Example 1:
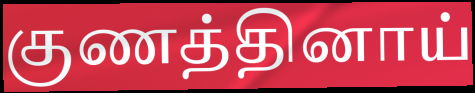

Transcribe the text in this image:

குணத்தினாய்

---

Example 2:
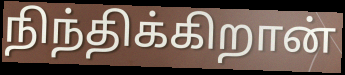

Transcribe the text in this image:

நிந்திக்கிறான்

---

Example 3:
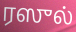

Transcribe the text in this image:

ரஸுல்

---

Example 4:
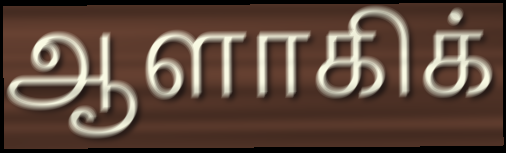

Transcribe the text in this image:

ஆளாகிக்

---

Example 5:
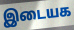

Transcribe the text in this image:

இடையக